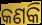
କଣକି